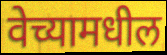
वेच्यामधील